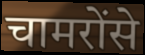
चामरोंसे